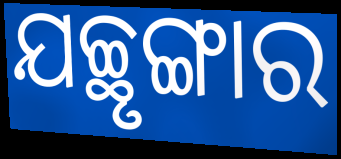
ଯଚ୍ଛୃଙ୍ଗାର